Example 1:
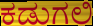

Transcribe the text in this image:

ಕಡುಗಲಿ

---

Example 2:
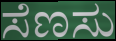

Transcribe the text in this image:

ಸೆಣಸು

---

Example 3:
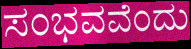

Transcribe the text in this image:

ಸಂಭವವೆಂದು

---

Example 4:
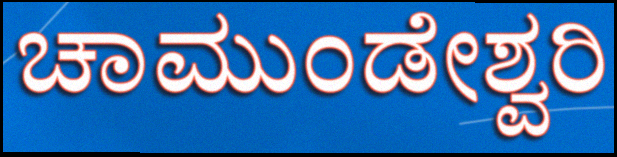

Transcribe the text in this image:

ಚಾಮುಂಡೇಶ್ವರಿ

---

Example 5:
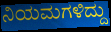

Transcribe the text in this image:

ನಿಯಮಗಳಿದ್ದು